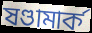
ষণ্ডামার্ক